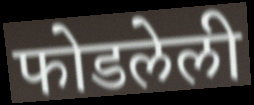
फोडलेली